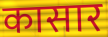
कासार